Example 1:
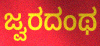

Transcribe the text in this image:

ಜ್ವರದಂಥ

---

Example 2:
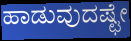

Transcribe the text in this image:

ಹಾಡುವುದಷ್ಟೇ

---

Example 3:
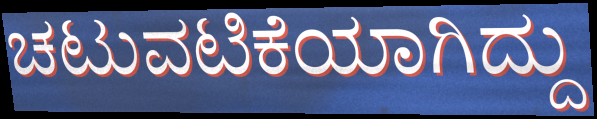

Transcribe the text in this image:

ಚಟುವಟಿಕೆಯಾಗಿದ್ದು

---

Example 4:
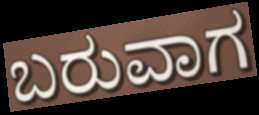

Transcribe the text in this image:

ಬರುವಾಗ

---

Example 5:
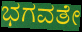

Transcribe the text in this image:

ಭಗವತೇ